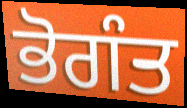
ਭੋਗੰਤ